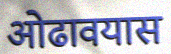
ओढावयास